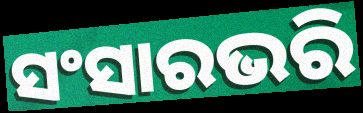
ସଂସାରଭରି